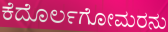
ಕೆದೊರ್ಲಗೋಮರನು